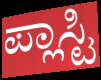
ಪ್ಲಾಸ್ಟಿ